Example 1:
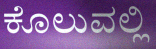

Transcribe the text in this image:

ಕೊಲುವಲ್ಲಿ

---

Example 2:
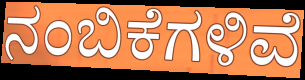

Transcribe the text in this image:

ನಂಬಿಕೆಗಳಿವೆ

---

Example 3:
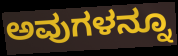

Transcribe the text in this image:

ಅವುಗಳನ್ನೂ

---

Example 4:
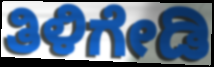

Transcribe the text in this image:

ತಿಳಿಗೇಡಿ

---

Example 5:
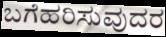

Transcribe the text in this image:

ಬಗೆಹರಿಸುವುದರ